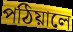
পঠিয়ালে